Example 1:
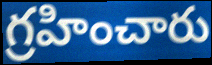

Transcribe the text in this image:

గ్రహించారు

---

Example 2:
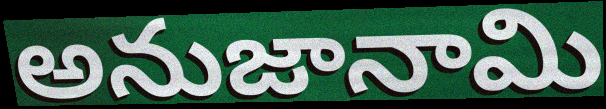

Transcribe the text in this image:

అనుజానామి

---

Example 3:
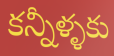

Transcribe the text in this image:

కన్నీళ్ళకు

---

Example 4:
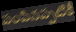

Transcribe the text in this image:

పంపినప్పటికీ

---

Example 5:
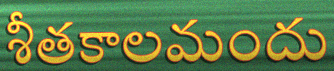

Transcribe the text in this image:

శీతకాలమందు